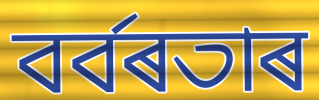
বৰ্বৰতাৰ